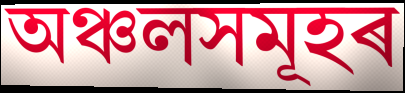
অঞ্চলসমূহৰ